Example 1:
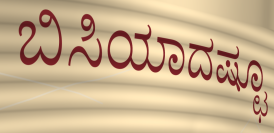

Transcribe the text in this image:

ಬಿಸಿಯಾದಷ್ಟೂ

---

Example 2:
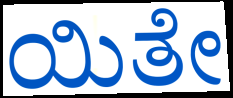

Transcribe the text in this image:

ಯಿತೇ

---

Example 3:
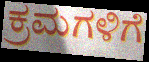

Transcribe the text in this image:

ಕ್ರಮಗಳಿಗೆ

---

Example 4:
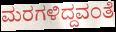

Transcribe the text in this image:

ಮರಗಳಿದ್ದವಂತೆ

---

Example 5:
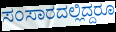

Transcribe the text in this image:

ಸಂಸಾರದಲ್ಲಿದ್ದರೂ